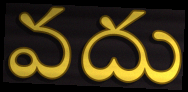
వదు